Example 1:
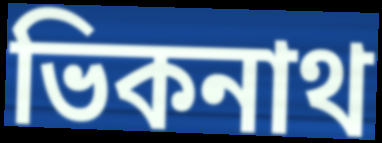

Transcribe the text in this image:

ভিকনাথ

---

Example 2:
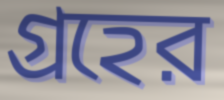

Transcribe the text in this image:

গ্রহের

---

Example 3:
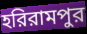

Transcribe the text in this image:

হরিরামপুর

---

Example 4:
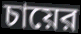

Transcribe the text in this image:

চায়ের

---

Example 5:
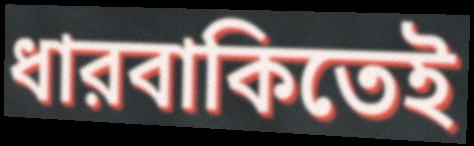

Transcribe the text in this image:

ধারবাকিতেই